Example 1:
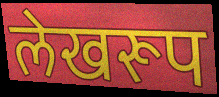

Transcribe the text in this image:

लेखरूप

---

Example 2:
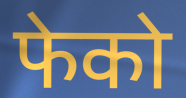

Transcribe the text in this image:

फेको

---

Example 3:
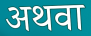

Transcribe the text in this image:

अथवा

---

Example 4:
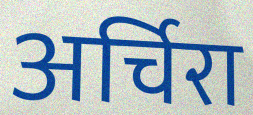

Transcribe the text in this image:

अर्चिरा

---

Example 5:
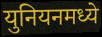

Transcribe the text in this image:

युनियनमध्ये